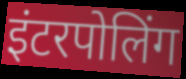
इंटरपोलिंग